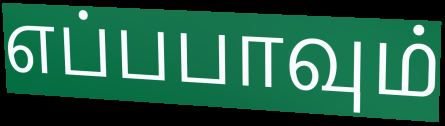
எப்பபாவும்